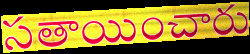
సతాయించారు